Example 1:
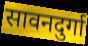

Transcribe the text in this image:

सावनदुर्गा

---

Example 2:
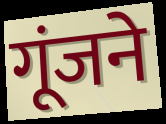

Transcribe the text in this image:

गूंजने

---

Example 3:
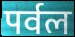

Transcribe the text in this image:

पर्वल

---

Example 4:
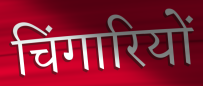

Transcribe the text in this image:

चिंगारियों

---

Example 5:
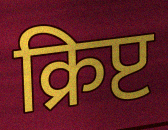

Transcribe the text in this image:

क्रिप्ट